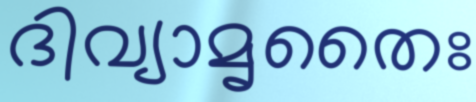
ദിവ്യാമൃതൈഃ